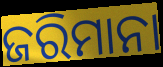
ଜରିମାନା